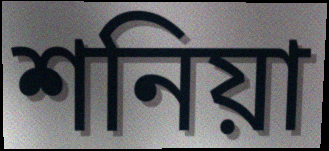
শনিয়া